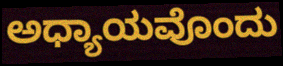
ಅಧ್ಯಾಯವೊಂದು